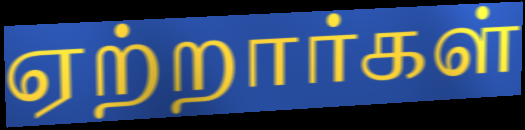
ஏற்றார்கள்